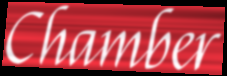
Chamber